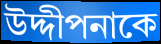
উদ্দীপনাকে